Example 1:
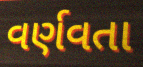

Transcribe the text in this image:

વર્ણવતા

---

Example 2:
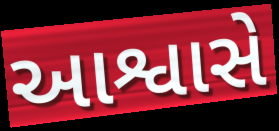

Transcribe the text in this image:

આશ્વાસે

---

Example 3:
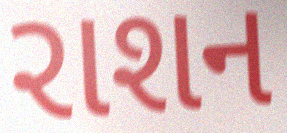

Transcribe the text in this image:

રાશન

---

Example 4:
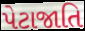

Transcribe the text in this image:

પેટાજાતિ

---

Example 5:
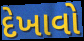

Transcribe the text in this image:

દેખાવો